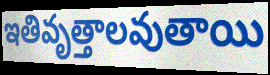
ఇతివృత్తాలవుతాయి